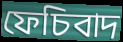
ফেচিবাদ